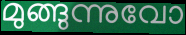
മുങ്ങുന്നുവോ